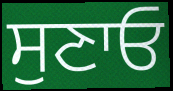
ਸੁਣਾਓ